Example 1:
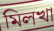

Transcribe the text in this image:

মিলখা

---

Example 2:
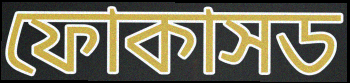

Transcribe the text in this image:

ফোকাসড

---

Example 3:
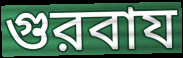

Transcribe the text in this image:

গুরবায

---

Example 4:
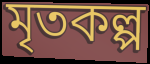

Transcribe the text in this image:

মৃতকল্প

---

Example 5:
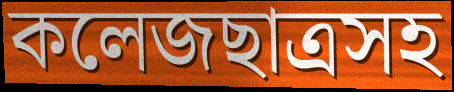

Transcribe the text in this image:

কলেজছাত্রসহ